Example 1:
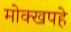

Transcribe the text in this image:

मोक्खपहे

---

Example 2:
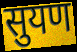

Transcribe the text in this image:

सुयण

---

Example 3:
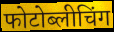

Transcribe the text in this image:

फोटोब्लीचिंग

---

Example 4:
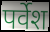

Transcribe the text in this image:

पर्वेश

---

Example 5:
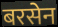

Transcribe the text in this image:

बरसेन